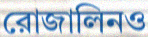
রোজালিনও